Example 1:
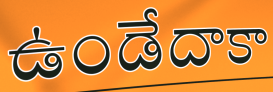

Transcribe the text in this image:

ఉండేదాకా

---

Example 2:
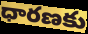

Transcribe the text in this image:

ధారణకు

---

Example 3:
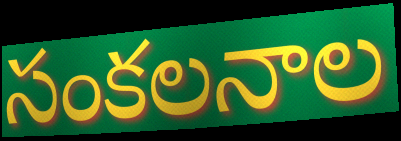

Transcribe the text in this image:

సంకలనాల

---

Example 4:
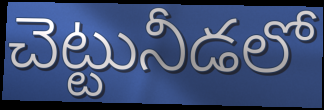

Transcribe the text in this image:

చెట్టునీడలో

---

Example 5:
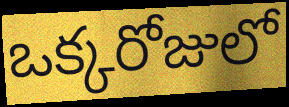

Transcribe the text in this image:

ఒక్కరోజులో